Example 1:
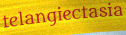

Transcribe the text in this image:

telangiectasia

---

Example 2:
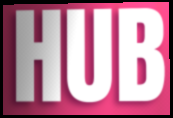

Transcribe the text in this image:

HUB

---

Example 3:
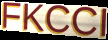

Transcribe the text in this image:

FKCCI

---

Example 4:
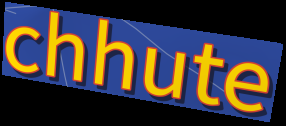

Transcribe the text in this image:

chhute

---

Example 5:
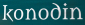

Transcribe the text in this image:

konodin